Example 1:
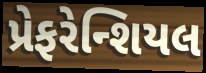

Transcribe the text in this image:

પ્રેફરેન્શિયલ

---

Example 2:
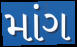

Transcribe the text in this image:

માંગ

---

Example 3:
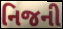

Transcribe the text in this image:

નિજની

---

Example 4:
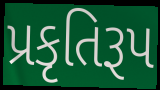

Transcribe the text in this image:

પ્રકૃતિરૂપ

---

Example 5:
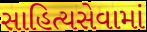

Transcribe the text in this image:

સાહિત્યસેવામાં